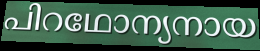
പിറഥോന്യനായ